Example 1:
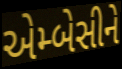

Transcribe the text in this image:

એમ્બેસીને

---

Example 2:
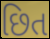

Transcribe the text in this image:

છિત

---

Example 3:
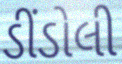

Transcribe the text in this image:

ડીંડોલી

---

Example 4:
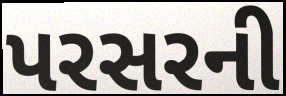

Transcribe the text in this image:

પરસરની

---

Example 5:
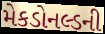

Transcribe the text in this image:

મેકડોનલ્ડની